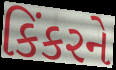
કિંકરને